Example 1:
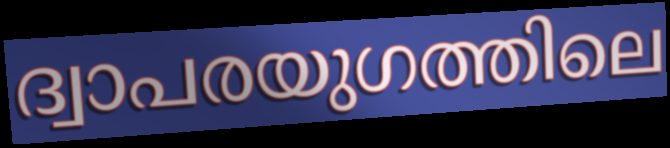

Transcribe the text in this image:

ദ്വാപരയുഗത്തിലെ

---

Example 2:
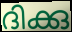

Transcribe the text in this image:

ദിക്കു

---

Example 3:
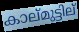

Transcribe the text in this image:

കാല്മുട്ടില്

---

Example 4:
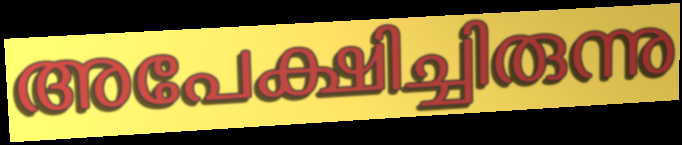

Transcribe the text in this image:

അപേക്ഷിച്ചിരുന്നു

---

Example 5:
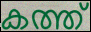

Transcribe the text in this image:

കത്ത്